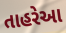
તાહરેઆ